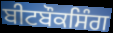
ਬੀਟਬੌਕਸਿੰਗ